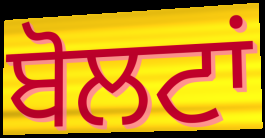
ਬੋਲਟਾਂ